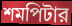
শমপিটার